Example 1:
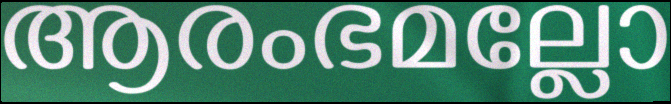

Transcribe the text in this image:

ആരംഭമല്ലോ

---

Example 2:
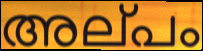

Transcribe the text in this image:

അല്‌പം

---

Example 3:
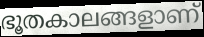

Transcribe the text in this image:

ഭൂതകാലങ്ങളാണ്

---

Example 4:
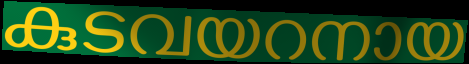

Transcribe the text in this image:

കുടവയറനായ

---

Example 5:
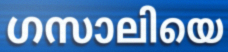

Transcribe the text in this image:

ഗസാലിയെ